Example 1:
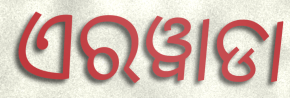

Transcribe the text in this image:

ଏରୱାଡା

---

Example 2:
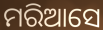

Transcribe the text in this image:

ମରିଆସେ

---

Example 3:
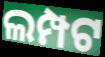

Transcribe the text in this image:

ଲମ୍ପଟ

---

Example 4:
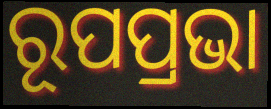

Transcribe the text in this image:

ରୂପପ୍ରଭା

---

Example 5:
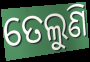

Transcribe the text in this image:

ତେଲୁଣି